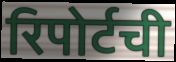
रिपोर्टची